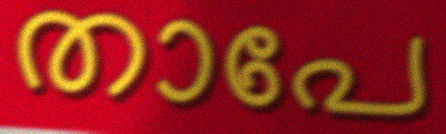
താപേ